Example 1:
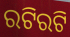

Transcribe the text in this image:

ରଟିରଟି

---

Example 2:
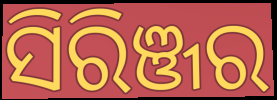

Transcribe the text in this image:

ସିରିଞ୍ଜର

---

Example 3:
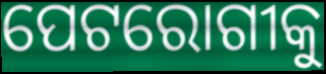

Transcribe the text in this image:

ପେଟରୋଗୀକୁ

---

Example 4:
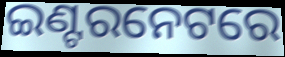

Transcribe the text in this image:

ଇଣ୍ଟରନେଟରେ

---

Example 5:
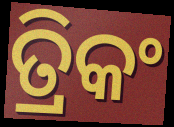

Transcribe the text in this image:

ତ୍ରିକଂ